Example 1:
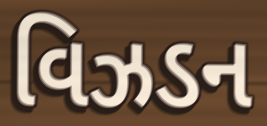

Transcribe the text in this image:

વિઝડન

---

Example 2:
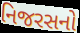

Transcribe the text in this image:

નિજરસનો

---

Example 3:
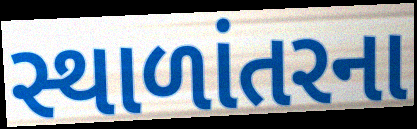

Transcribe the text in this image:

સ્થાળાંતરના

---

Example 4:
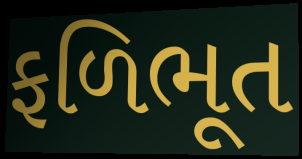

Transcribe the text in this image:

ફળિભૂત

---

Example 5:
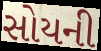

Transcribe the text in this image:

સોયની